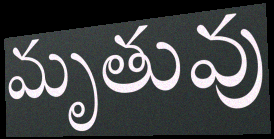
మృతువు